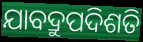
ଯାବଦ୍ରୁପଦିଶତି